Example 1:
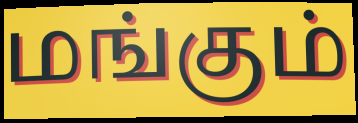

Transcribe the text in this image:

மங்கும்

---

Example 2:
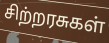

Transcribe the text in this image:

சிற்றரசுகள்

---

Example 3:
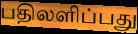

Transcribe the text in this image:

பதிலளிப்பது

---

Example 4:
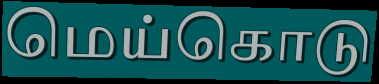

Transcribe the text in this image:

மெய்கொடு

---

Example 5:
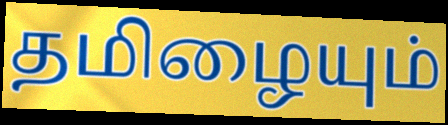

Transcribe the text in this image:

தமிழையும்